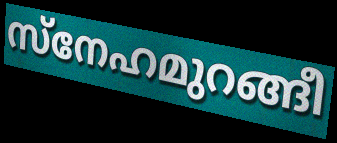
സ്നേഹമുറങ്ങീ